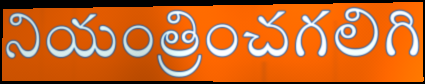
నియంత్రించగలిగి